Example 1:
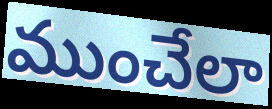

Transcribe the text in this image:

ముంచేలా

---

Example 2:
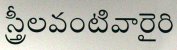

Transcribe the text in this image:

స్త్రీలవంటివారైరి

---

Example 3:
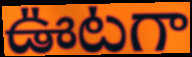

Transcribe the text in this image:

ఊటగా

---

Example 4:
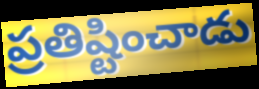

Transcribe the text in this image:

ప్రతిష్టించాడు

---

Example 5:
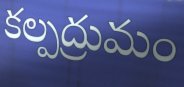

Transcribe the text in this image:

కల్పద్రుమం